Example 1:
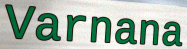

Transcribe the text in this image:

Varnana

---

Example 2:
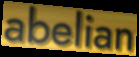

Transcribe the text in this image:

abelian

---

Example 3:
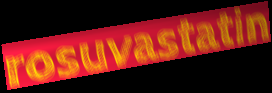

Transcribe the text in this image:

rosuvastatin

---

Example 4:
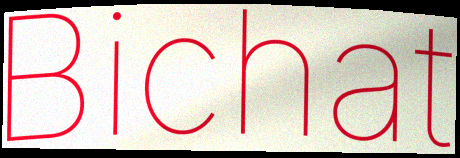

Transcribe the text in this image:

Bichat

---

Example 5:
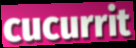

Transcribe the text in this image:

cucurrit